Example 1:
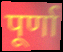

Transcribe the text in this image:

पूर्णा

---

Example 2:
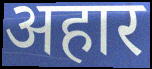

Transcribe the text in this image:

अहार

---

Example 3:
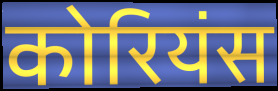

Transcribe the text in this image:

कोरियंस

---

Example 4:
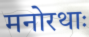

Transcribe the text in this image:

मनोरथाः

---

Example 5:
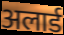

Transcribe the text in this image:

अलार्ड